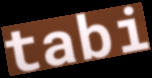
tabi